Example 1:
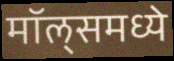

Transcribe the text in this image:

मॉल्समध्ये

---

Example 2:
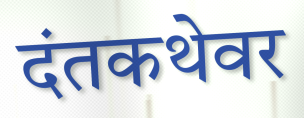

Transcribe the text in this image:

दंतकथेवर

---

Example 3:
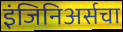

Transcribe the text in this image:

इंजिनिअर्सचा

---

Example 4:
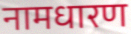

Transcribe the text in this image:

नामधारण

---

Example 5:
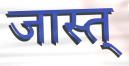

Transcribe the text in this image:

जास्त्